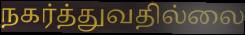
நகர்த்துவதில்லை